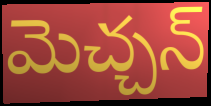
మెచ్చన్